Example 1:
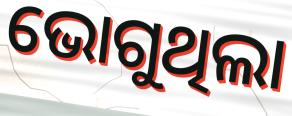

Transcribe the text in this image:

ଭୋଗୁଥିଲା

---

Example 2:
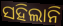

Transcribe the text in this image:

ସହିଲାନି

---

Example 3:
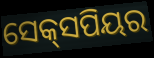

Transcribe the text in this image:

ସେକ୍‌ସପିୟର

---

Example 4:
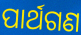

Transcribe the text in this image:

ପାର୍ଥଗଣ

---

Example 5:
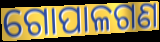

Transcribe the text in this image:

ଗୋପାଳଗଣ